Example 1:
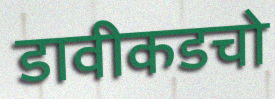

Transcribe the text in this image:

डावीकडचो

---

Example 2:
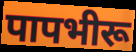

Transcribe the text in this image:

पापभीरू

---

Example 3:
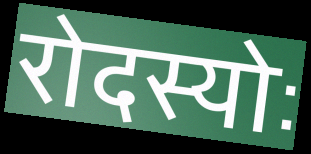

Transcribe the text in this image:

रोदस्योः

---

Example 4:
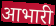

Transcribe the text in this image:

आभारी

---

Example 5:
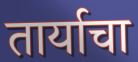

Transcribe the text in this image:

तार्याचा